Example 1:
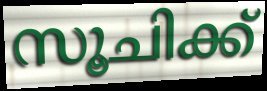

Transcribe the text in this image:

സൂചിക്ക്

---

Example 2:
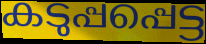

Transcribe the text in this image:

കടുപ്പപ്പെട്ട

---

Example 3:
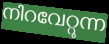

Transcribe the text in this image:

നിറവേറ്റുന്ന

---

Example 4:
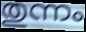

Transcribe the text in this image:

തുന്നം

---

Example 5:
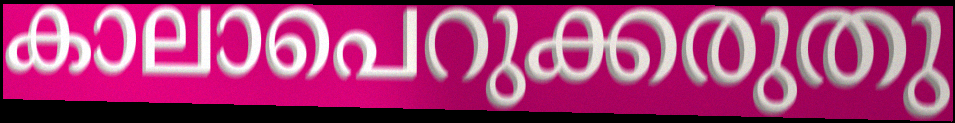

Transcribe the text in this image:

കാലാപെറുക്കരുതു